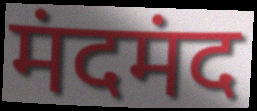
मंदमंद